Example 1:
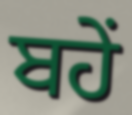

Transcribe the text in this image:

ਬਹੇਂ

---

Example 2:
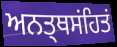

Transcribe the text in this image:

ਅਨਤ੍ਥਸਂਹਿਤਂ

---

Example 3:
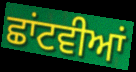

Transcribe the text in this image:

ਛਾਂਟਵੀਆਂ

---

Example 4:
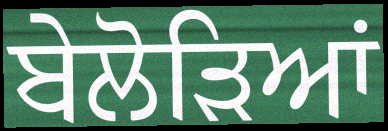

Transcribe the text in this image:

ਬੇਲੋੜਿਆਂ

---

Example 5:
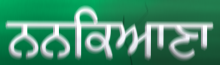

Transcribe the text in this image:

ਨਨਕਿਆਣਾ